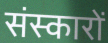
संस्कारों